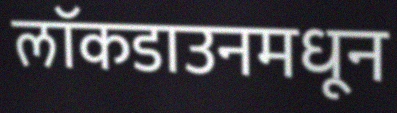
लॉकडाउनमधून